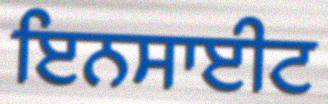
ਇਨਸਾਈਟ